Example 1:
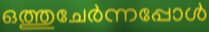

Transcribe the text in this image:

ഒത്തുചേർന്നപ്പോൾ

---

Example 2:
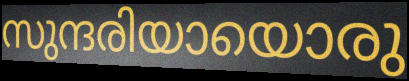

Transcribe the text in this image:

സുന്ദരിയായൊരു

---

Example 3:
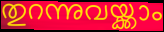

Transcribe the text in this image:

തുറന്നുവയ്ക്കാം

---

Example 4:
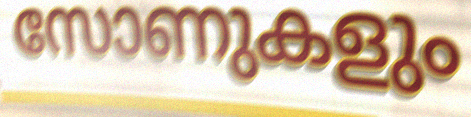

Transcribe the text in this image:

സോണുകളും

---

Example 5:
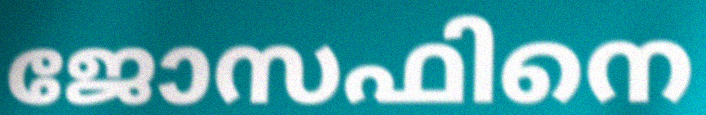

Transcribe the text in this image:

ജോസഫിനെ